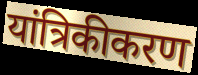
यांत्रिकीकरण